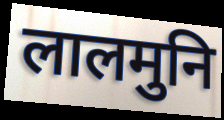
लालमुनि